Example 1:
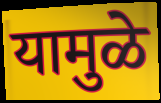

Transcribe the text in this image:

यामुळे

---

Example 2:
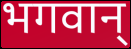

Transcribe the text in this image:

भगवान्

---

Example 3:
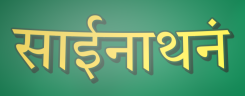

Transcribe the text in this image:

साईनाथनं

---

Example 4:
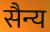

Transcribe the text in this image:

सैन्य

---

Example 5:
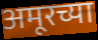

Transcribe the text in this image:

अमूरच्या